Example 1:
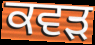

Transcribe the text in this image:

ਕਵੜ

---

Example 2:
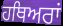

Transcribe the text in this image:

ਹਥਿਅਰਾਂ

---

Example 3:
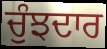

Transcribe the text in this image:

ਚੁੰਝਦਾਰ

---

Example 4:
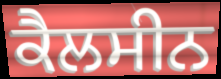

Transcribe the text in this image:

ਕੈਲਸੀਨ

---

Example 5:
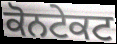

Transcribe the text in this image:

ਕੋਨਟੇਕਟ